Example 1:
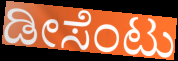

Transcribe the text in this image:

ಡೀಸೆಂಟು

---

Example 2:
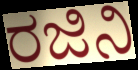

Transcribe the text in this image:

ರಜಿನಿ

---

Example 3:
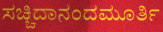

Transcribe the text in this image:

ಸಚ್ಚಿದಾನಂದಮೂರ್ತಿ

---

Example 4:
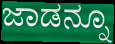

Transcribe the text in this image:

ಜಾಡನ್ನೂ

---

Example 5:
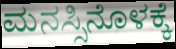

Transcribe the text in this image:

ಮನಸ್ಸಿನೊಳಕ್ಕೆ